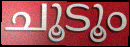
ചൂടൂം